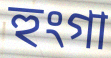
হুংগা